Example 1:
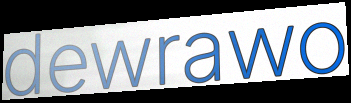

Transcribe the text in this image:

dewrawo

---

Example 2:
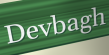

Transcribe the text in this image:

Devbagh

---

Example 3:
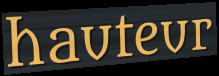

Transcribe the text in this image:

hauteur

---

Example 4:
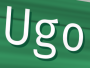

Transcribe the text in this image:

Ugo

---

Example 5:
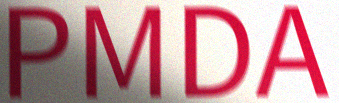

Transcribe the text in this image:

PMDA